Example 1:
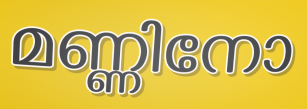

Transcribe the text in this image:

മണ്ണിനോ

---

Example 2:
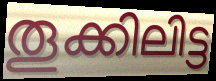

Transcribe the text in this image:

തൂക്കിലിട്ട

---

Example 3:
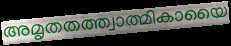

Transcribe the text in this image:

അമൃതതത്ത്വാത്മികായൈ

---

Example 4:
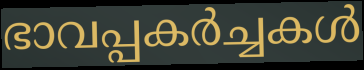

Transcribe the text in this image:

ഭാവപ്പകർച്ചകൾ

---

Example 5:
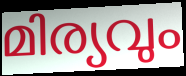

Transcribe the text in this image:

മിര്യവും